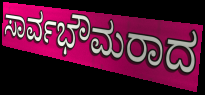
ಸಾರ್ವಭೌಮರಾದ